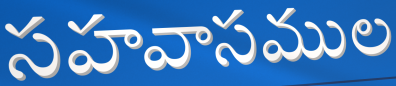
సహవాసముల